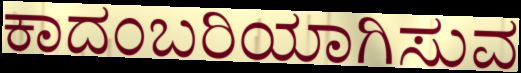
ಕಾದಂಬರಿಯಾಗಿಸುವ